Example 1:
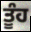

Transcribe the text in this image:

ਤੂੰਹ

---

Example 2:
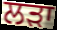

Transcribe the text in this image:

ਲੜਾ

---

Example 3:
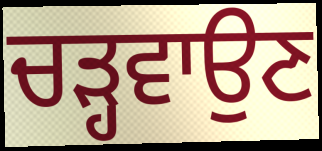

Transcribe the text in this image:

ਚੜ੍ਹਵਾਉਣ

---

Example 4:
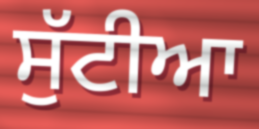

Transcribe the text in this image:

ਸੁੱਟੀਆ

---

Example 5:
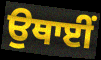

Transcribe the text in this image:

ਉਥਾਈਂ